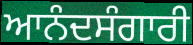
ਆਨੰਦਸੰਗਾਰੀ